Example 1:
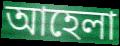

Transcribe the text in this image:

আহেলা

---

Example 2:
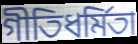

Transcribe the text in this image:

গীতিধর্মিতা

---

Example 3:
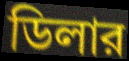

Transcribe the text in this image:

ডিলার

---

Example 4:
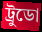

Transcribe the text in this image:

ট্রুডো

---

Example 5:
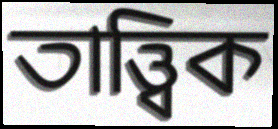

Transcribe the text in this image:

তাত্ত্বিক